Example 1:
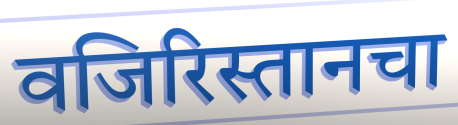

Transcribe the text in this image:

वजिरिस्तानचा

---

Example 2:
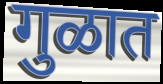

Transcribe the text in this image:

गुळात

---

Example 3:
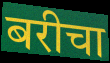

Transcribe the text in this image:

बरीचा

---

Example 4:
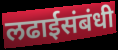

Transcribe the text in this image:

लढाईसंबंधी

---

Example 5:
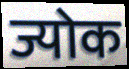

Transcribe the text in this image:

ज्योक